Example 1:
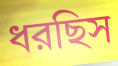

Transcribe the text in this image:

ধরছিস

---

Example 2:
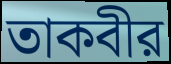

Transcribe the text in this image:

তাকবীর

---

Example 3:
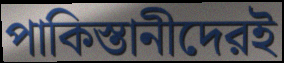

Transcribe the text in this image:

পাকিস্তানীদেরই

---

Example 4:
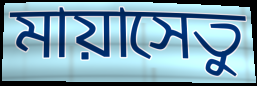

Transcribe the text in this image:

মায়াসেতু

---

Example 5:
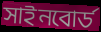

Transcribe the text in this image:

সাইনবোর্ড